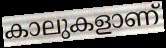
കാലുകളാണ്